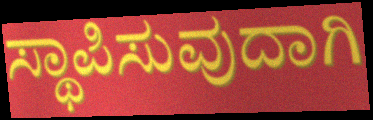
ಸ್ಥಾಪಿಸುವುದಾಗಿ